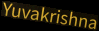
Yuvakrishna